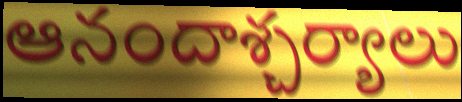
ఆనందాశ్చర్యాలు